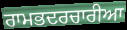
ਰਾਮਭਦਰਚਾਰੀਆ